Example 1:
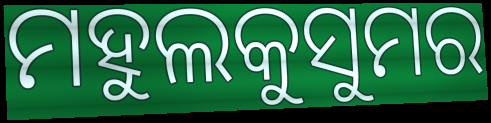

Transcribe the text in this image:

ମହୁଲକୁସୁମର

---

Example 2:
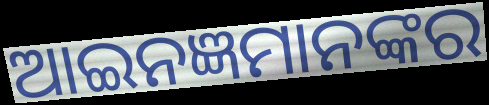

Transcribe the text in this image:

ଆଇନଜ୍ଞମାନଙ୍କର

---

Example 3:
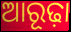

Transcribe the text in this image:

ଆରୂଢ଼ା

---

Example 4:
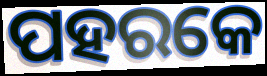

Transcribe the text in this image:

ପହରକେ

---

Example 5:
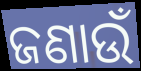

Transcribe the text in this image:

ଜଣାଉଁ